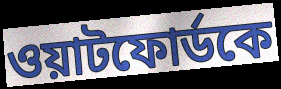
ওয়াটফোর্ডকে